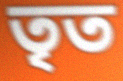
তৃত